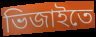
ভিজাইতে